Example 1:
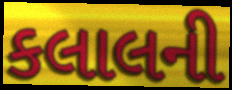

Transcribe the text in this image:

કલાલની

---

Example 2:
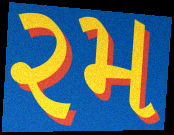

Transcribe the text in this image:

રમ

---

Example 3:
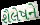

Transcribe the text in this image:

શૈલેષને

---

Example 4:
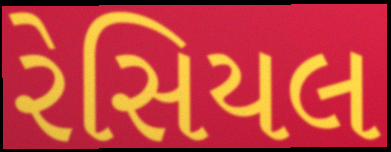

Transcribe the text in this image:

રેસિયલ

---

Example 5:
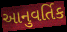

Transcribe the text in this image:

આનુવર્તિક